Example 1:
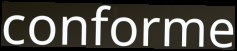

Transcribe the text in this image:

conforme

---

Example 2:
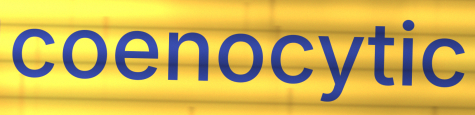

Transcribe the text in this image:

coenocytic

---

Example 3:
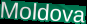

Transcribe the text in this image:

Moldova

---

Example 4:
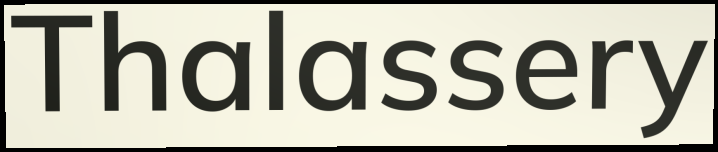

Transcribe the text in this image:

Thalassery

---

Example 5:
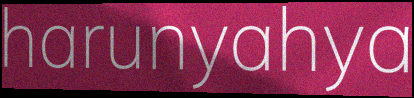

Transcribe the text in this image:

harunyahya